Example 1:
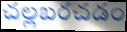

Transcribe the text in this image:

చల్లబరచడం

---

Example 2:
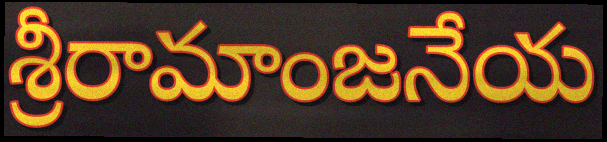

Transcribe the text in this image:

శ్రీరామాంజనేయ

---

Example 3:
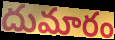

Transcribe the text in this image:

దుమారం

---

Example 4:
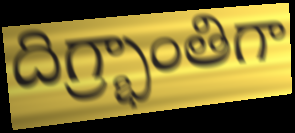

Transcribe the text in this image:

దిగ్ర్భాంతిగా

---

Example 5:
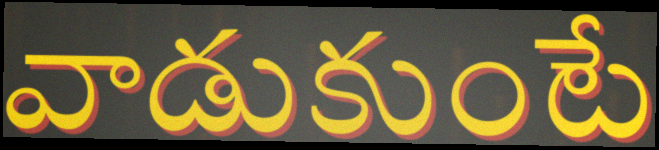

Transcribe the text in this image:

వాడుకుంటే